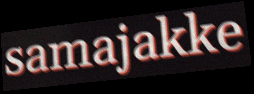
samajakke